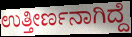
ಉತ್ತೀರ್ಣನಾಗಿದ್ದೆ